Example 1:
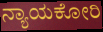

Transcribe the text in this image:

ನ್ಯಾಯಕೋರಿ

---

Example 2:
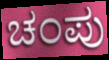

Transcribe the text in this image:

ಚಂಪು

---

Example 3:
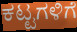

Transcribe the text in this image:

ಕಟ್ಟಗಳಿಗೆ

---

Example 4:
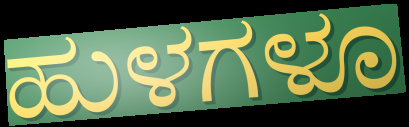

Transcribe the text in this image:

ಹುಳಗಳೂ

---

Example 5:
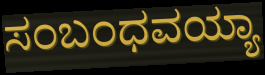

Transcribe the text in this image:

ಸಂಬಂಧವಯ್ಯಾ